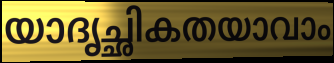
യാദൃച്ഛികതയാവാം